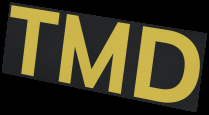
TMD